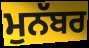
ਮੁਨੱਬਰ